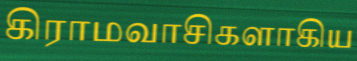
கிராமவாசிகளாகிய